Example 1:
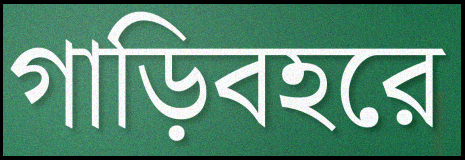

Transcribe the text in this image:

গাড়িবহরে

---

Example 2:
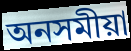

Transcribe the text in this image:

অনসমীয়া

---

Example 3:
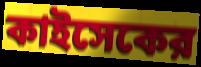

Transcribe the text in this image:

কাইসেকের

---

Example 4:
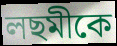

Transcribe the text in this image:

লছমীকে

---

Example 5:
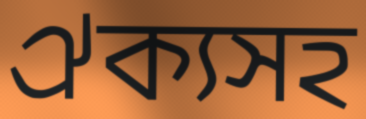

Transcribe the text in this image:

ঐক্যসহ